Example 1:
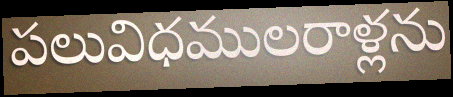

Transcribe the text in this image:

పలువిధములరాళ్లను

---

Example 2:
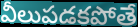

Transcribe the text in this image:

వీలుపడకపోతే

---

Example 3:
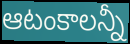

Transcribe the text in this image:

ఆటంకాలన్నీ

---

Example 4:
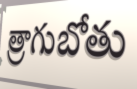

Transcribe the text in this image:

త్రాగుబోతు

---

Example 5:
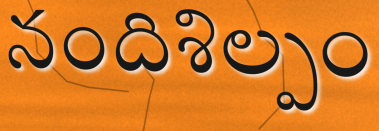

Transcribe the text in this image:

నందిశిల్పం